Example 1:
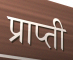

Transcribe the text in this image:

प्राप्ती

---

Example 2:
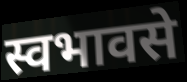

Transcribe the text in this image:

स्वभावसे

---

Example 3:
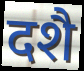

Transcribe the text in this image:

दशै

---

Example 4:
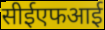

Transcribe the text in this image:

सीईएफआई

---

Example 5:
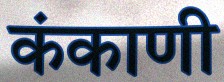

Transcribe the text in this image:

कंकाणी